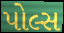
પોલ્સ